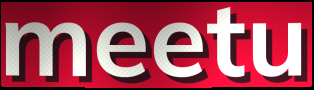
meetu